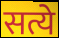
सत्ये